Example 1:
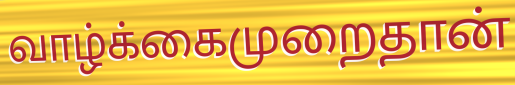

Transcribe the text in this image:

வாழ்க்கைமுறைதான்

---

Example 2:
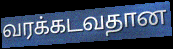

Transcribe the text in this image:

வரக்கடவதான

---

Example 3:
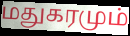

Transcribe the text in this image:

மதுகரமும்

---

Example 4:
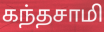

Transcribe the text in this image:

கந்தசாமி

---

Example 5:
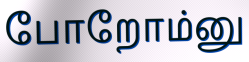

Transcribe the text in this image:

போறோம்னு